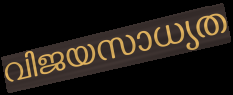
വിജയസാധ്യത